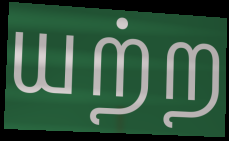
யற்ற